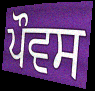
ਪੌਵਸ